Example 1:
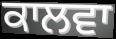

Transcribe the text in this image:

ਕਾਲਵਾ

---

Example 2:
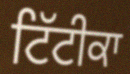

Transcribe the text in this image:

ਟਿੱਟੀਕਾ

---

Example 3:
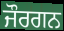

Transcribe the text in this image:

ਜੌਰਗਨ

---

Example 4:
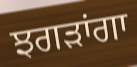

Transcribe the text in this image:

ਝਗੜਾਂਗਾ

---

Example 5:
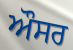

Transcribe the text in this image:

ਔਸਰ